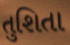
તુશિતા